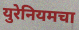
युरेनियमचा